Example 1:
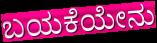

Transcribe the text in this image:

ಬಯಕೆಯೇನು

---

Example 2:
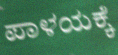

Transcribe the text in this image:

ಪಾಳಯಕ್ಕೆ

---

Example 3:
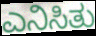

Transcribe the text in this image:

ಎನಿಸಿತು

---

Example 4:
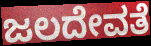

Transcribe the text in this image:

ಜಲದೇವತೆ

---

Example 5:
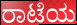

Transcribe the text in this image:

ರಾಟೆಯ